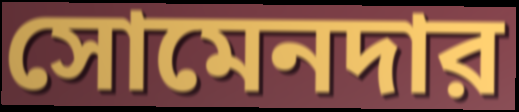
সোমেনদার